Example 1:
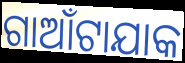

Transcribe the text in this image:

ଗାଆଁଟାଯାକ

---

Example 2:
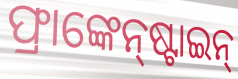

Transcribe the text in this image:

ଫ୍ରାଙ୍କେନ୍‌ଷ୍ଟାଇନ୍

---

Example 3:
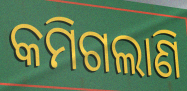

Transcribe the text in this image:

କମିଗଲାଣି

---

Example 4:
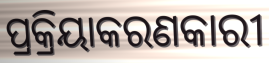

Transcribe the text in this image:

ପ୍ରକ୍ରିୟାକରଣକାରୀ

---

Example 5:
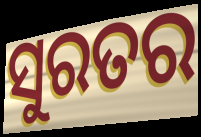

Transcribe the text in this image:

ସୁରତର